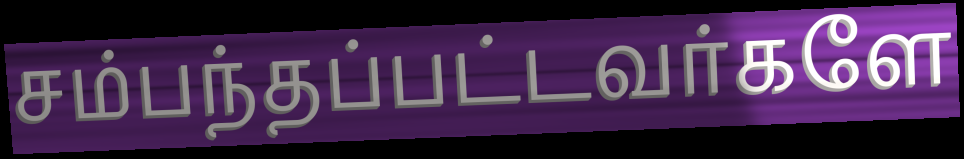
சம்பந்தப்பட்டவர்களே